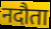
नदौता